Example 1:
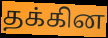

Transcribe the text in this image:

தக்கின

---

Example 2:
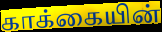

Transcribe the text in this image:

காக்கையின்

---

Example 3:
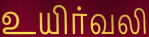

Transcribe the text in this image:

உயிர்வலி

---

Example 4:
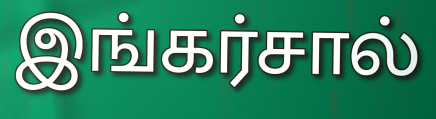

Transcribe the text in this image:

இங்கர்சால்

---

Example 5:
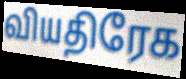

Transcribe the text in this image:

வியதிரேக